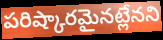
పరిష్కారమైనట్లేనని